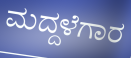
ಮದ್ದಳೆಗಾರ